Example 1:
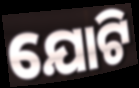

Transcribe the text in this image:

ଯୋଟି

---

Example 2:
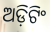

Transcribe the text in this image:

ଅଡ଼ିଟିଂ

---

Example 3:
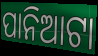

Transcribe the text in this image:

ପାନିଆଟା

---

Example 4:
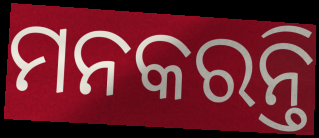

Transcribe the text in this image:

ମନକରନ୍ତି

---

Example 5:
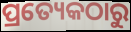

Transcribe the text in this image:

ପ୍ରତ୍ୟେକଠାରୁ